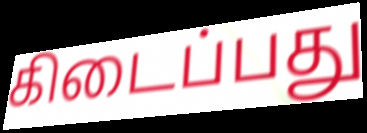
கிடைப்பது